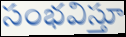
సంభవిస్తూ